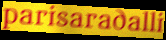
parisaradalli